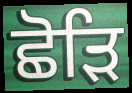
ਛੋੜਿ